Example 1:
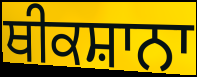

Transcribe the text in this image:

ਥੀਕਸ਼ਾਨਾ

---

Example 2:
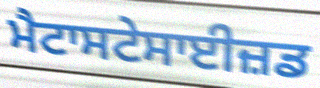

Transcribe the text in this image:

ਮੈਟਾਸਟੇਸਾਈਜ਼ਡ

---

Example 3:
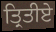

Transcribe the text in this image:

ਤ੍ਰਿਤੀਏ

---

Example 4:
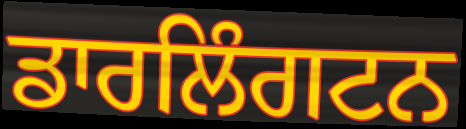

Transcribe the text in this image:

ਡਾਰਲਿੰਗਟਨ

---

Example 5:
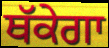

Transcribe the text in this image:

ਥੱਕੇਗਾ